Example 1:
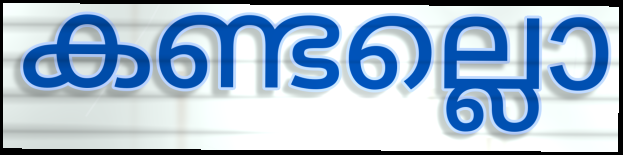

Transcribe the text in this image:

കണ്ടല്ലൊ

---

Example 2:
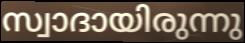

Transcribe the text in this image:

സ്വാദായിരുന്നു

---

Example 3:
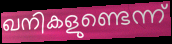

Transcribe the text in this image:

ഖനികളുണ്ടെന്ന്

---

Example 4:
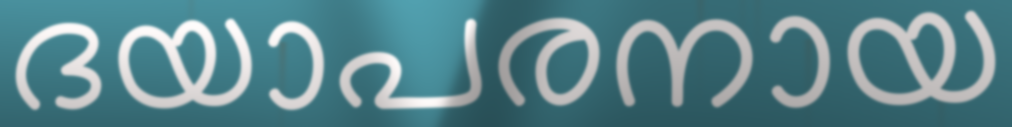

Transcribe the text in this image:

ദയാപരനായ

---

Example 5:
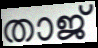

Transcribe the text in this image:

താജ്